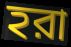
হরা